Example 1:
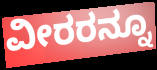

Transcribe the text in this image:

ವೀರರನ್ನೂ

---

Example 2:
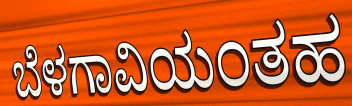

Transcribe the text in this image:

ಬೆಳಗಾವಿಯಂತಹ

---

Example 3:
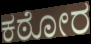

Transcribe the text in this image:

ಕಠೋರ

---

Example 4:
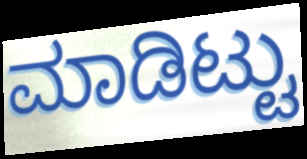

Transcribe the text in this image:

ಮಾಡಿಟ್ಟು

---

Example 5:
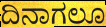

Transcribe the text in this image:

ದಿನಾಗಲೂ